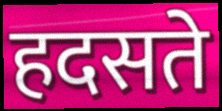
हदसते